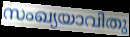
സംഖ്യയാവിതു